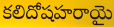
కలిదోషహరాయై